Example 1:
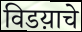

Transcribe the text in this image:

विडय़ाचे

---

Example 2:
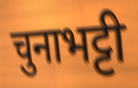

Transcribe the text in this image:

चुनाभट्टी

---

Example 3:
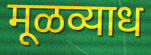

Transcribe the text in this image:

मूळव्याध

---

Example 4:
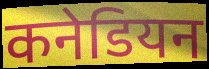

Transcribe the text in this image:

कनेडियन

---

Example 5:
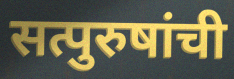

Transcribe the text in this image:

सत्पुरुषांची